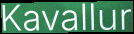
Kavallur